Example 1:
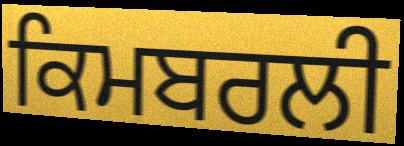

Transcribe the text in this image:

ਕਿਮਬਰਲੀ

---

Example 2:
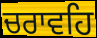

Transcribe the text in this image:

ਚਰਾਵਹਿ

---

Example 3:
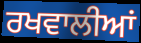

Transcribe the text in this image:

ਰਖਵਾਲੀਆਂ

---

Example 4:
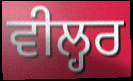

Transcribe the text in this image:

ਵੀਲ੍ਹਰ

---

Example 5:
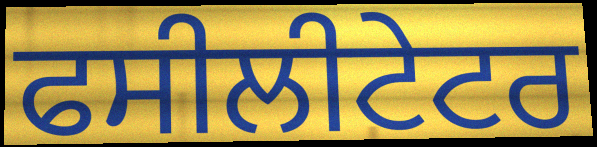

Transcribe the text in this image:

ਫਸੀਲੀਟੇਟਰ